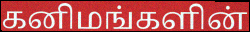
கனிமங்களின்